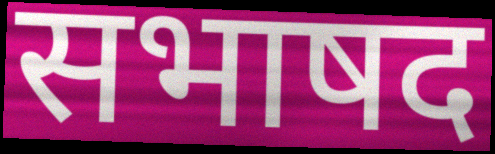
सभाषद